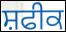
ਸ਼ਫੀਕ